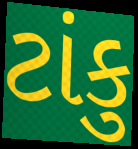
ટાંકુ